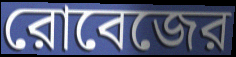
রোবেজের